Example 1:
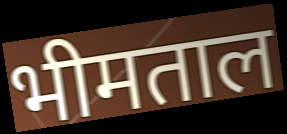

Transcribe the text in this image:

भीमताल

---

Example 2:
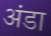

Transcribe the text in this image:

अंडा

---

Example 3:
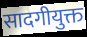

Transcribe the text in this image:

सादगीयुक्त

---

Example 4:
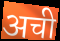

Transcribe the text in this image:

अची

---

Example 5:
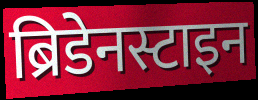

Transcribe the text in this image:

ब्रिडेनस्टाइन